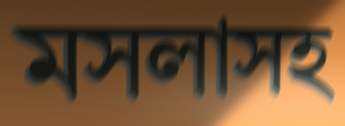
মসলাসহ